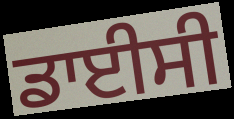
ਡਾਈਸੀ